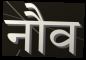
नौव